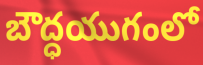
బౌద్ధయుగంలో